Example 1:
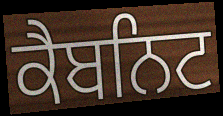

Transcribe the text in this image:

ਕੈਬਨਿਟ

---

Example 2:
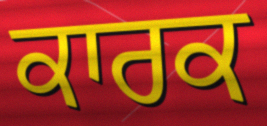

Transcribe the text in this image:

ਕਾਰਕ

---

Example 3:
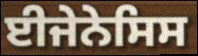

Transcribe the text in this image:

ਈਜੇਨੇਸਿਸ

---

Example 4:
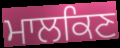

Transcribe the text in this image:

ਮਾਲਕਿਣ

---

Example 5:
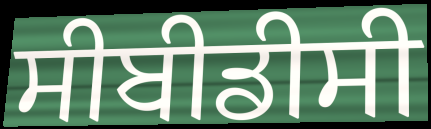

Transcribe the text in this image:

ਸੀਬੀਡੀਸੀ